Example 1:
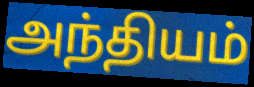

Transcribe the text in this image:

அந்தியம்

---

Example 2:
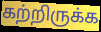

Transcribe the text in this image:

கற்றிருக்க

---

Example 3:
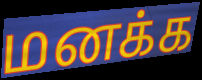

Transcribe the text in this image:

மனக்க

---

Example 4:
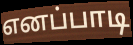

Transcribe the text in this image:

எனப்பாடி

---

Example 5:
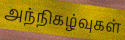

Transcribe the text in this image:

அந்நிகழ்வுகள்